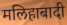
मलिहाबादी